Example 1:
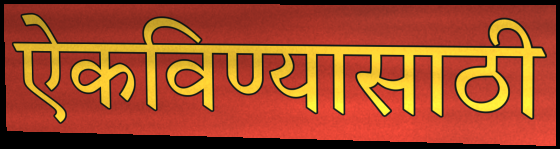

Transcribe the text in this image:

ऐकविण्यासाठी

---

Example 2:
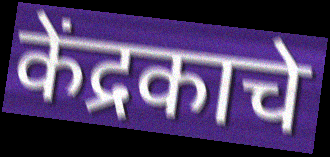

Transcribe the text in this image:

केंद्रकाचे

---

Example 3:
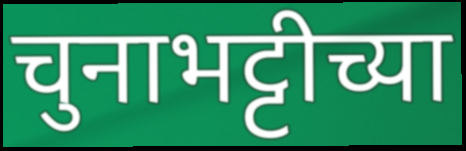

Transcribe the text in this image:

चुनाभट्टीच्या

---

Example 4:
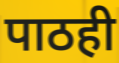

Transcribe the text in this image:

पाठही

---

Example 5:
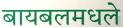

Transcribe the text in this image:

बायबलमधले